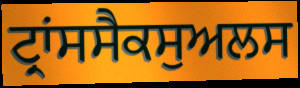
ਟ੍ਰਾਂਸਸੈਕਸੁਅਲਸ